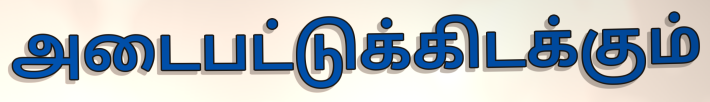
அடைபட்டுக்கிடக்கும்